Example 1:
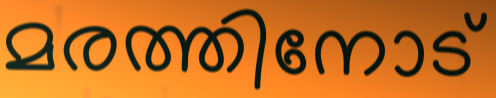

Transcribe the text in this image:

മരത്തിനോട്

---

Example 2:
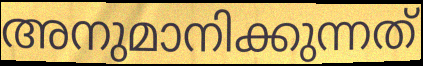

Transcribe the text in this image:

അനുമാനിക്കുന്നത്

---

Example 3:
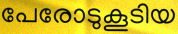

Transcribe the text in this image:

പേരോടുകൂടിയ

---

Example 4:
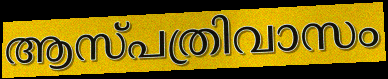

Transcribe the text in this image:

ആസ്പത്രിവാസം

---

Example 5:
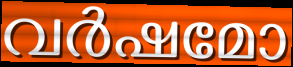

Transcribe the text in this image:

വർഷമോ